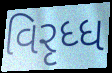
વિરૃધ્ધ